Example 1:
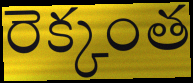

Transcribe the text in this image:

రెక్కంత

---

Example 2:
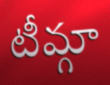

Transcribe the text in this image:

టీమ్గా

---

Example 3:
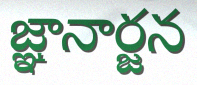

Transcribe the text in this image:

జ్ఞానార్జన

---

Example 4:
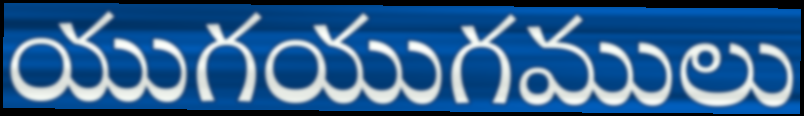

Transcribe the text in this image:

యుగయుగములు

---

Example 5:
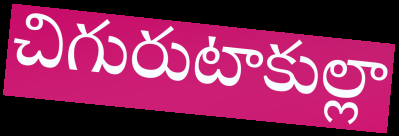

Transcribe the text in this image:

చిగురుటాకుల్లా